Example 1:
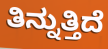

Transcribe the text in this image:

ತಿನ್ನುತ್ತಿದೆ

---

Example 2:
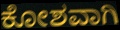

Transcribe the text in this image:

ಕೋಶವಾಗಿ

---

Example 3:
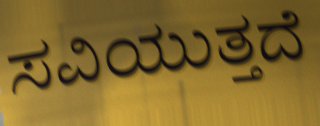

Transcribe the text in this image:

ಸವಿಯುತ್ತದೆ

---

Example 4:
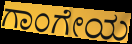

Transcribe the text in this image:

ಗಾಂಗೇಯ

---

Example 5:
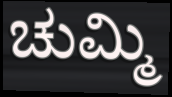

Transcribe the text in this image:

ಚುಮ್ಮಿ